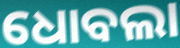
ଧୋବଲା